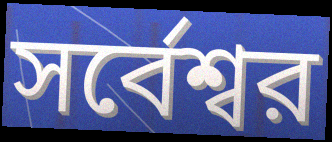
সর্বেশ্বর